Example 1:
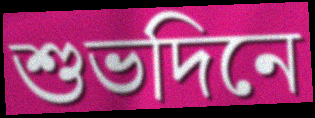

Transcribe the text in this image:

শুভদিনে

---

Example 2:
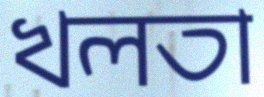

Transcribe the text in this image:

খলতা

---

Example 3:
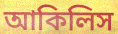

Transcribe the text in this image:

আকিলিস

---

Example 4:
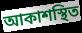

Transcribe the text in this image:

আকাশস্থিত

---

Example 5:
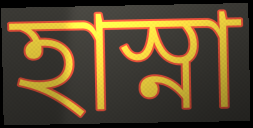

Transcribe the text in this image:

হাস্না